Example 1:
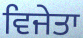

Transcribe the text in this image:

ਵਿਜੇਤਾ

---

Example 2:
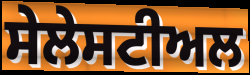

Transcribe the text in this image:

ਸੇਲੇਸਟੀਅਲ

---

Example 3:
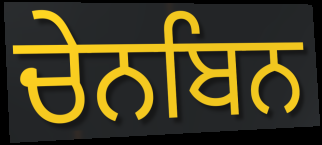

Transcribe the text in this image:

ਚੇਨਬਿਨ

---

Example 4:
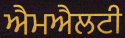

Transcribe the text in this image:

ਐਮਐਲਟੀ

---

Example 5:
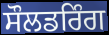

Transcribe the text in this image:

ਸੌਲਡਰਿੰਗ